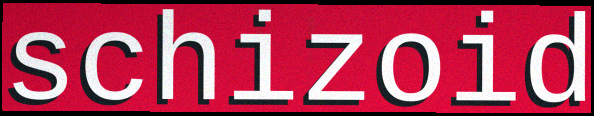
schizoid